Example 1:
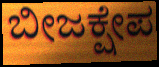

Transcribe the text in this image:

ಬೀಜಕ್ಷೇಪ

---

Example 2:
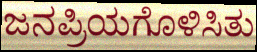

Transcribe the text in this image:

ಜನಪ್ರಿಯಗೊಳಿಸಿತು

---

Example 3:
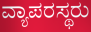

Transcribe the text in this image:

ವ್ಯಾಪರಸ್ಥರು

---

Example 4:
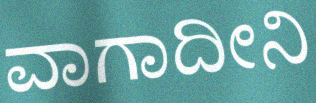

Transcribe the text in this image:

ವಾಗಾದೀನಿ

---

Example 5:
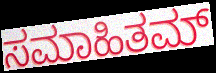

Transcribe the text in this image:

ಸಮಾಹಿತಮ್